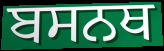
ਬਸਨਥ